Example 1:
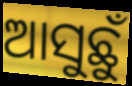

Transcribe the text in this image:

ଆସୁଛୁଁ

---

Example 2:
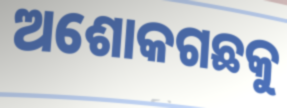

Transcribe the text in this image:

ଅଶୋକଗଛକୁ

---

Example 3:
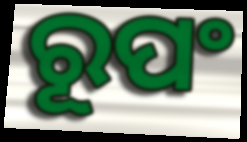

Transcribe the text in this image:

ରୂପଂ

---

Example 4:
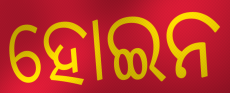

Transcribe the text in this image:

ହୋଇନ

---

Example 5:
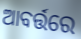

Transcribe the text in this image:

ଆବର୍ତ୍ତରେ